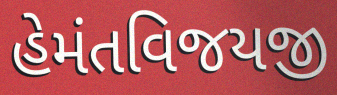
હેમંતવિજયજી